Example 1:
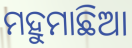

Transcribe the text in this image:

ମହୁମାଛିଆ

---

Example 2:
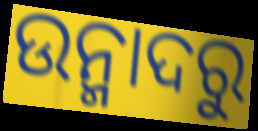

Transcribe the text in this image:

ଉନ୍ମାଦରୁ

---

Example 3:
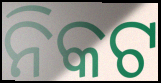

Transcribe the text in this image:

ନିକଟ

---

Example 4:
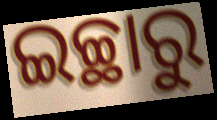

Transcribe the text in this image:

ଇଚ୍ଛାରୁ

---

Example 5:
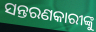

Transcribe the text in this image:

ସନ୍ତରଣକାରୀଙ୍କୁ